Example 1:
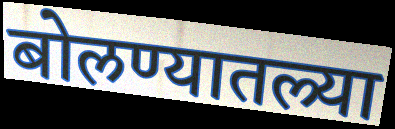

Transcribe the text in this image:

बोलण्यातल्या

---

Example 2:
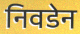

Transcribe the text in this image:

निवडेन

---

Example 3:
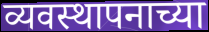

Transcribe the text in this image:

व्यवस्थापनाच्या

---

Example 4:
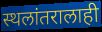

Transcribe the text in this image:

स्थलांतरालाही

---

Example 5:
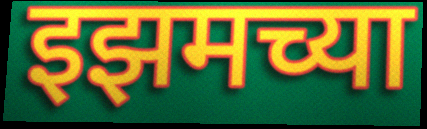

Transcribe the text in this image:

इझमच्या